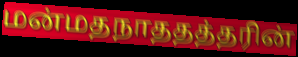
மன்மதநாததத்தரின்